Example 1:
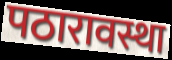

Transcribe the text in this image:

पठारावस्था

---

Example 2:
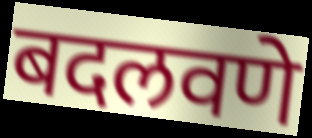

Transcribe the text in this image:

बदलवणे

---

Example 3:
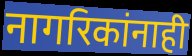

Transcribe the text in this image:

नागरिकांनाही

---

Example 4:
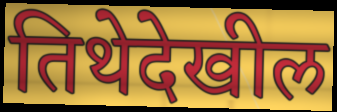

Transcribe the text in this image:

तिथेदेखील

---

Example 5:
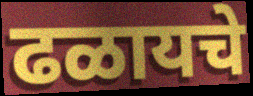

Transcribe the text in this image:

ढळायचे